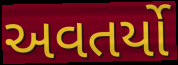
અવતર્યો